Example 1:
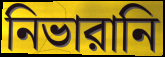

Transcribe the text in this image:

নিভারানি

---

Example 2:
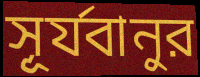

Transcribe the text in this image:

সূর্যবানুর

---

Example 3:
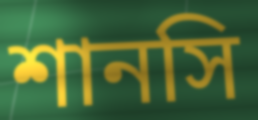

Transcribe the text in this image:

শানসি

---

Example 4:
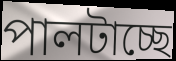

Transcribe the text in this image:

পালটাচ্ছে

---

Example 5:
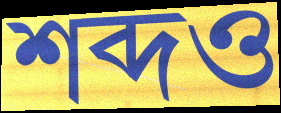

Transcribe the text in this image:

শব্দও